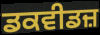
ਡਕਵੀਡਜ਼